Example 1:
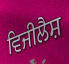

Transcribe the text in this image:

ਵਿਜੀਲੈਸ਼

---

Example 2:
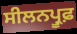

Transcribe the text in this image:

ਸੀਲਨਪ੍ਰੂਫ਼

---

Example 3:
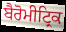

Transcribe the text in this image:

ਬੈਰੋਮੀਟ੍ਰਿਕ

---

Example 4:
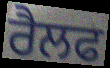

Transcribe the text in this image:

ਰੈਲਫ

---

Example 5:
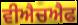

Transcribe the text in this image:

ਵੀਐਚਐਫ